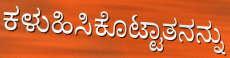
ಕಳುಹಿಸಿಕೊಟ್ಟಾತನನ್ನು